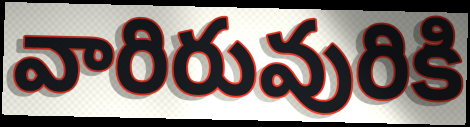
వారిరువురికి